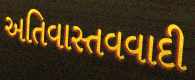
અતિવાસ્તવવાદી